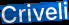
Criveli